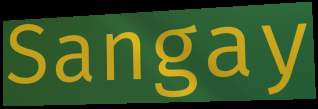
Sangay